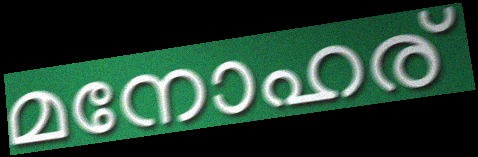
മനോഹര്